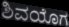
ಶಿವಯೊಗ